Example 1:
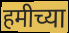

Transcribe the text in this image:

हमीच्या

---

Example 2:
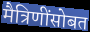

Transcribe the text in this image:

मैत्रिणींसोबत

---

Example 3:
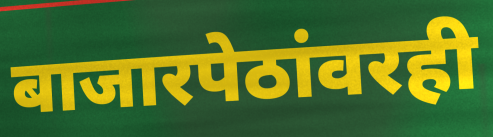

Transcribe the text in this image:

बाजारपेठांवरही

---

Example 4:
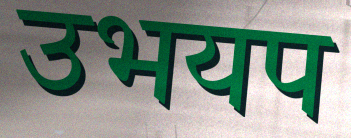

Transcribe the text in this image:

उभयप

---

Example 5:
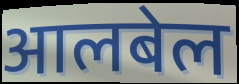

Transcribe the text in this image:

आलबेल